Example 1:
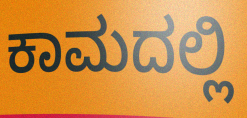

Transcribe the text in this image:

ಕಾಮದಲ್ಲಿ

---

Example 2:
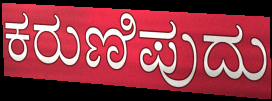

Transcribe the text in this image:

ಕರುಣಿಪುದು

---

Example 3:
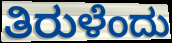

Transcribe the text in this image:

ತಿರುಳೆಂದು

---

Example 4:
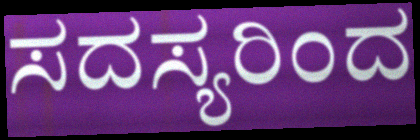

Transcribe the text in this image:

ಸದಸ್ಯರಿಂದ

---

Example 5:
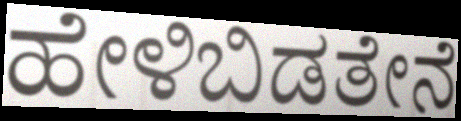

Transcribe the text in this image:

ಹೇಳಿಬಿಡತೇನೆ